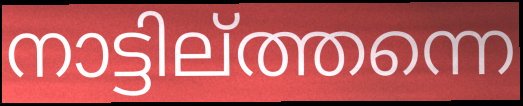
നാട്ടില്ത്തന്നെ